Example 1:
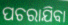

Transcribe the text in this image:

ପଚରାଯିବା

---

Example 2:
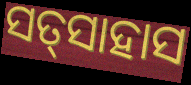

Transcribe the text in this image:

ସତ୍‌ସାହାସ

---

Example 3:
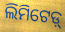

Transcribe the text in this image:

ଲିମିଟେଡ଼୍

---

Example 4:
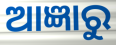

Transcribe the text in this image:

ଆଜ୍ଞାରୁ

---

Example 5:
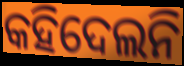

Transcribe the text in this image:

କହିଦେଲନି